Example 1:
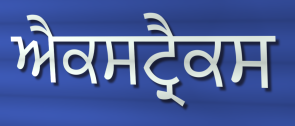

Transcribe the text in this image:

ਐਕਸਟ੍ਰੈਕਸ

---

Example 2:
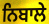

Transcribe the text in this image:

ਨਿਬਾਲੇ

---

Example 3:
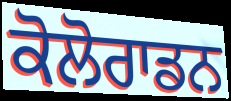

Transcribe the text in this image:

ਕੋਲੋਰਾਡਨ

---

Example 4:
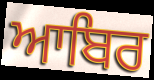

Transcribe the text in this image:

ਆਬਿਰ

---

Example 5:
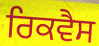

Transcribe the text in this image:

ਰਿਕਵੈਸ